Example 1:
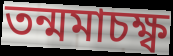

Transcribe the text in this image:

তন্মমাচক্ষ্ব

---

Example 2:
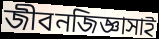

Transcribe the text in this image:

জীবনজিজ্ঞাসাই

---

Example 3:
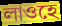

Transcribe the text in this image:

লাওহে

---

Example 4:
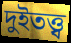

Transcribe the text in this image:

দুইতত্ত্ব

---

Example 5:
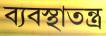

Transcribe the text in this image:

ব্যবস্থাতন্ত্র